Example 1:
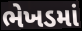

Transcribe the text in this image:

ભેખડમાં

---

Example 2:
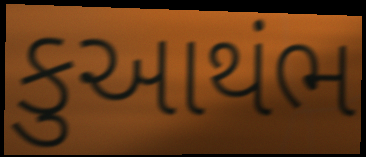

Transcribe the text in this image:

કુઆથંભ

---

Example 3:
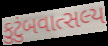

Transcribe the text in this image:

કુટુંબવાત્સલ્ય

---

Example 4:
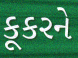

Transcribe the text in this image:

કૂકરને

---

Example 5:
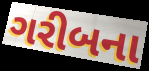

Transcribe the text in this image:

ગરીબના